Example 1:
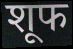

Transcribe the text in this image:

शूफ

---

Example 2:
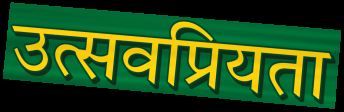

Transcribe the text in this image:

उत्सवप्रियता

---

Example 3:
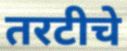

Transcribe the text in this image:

तरटीचे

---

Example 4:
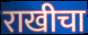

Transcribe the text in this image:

राखीचा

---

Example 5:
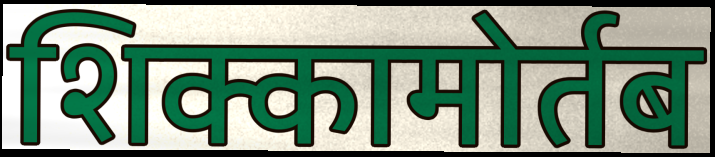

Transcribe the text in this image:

शिक्कामोर्तब